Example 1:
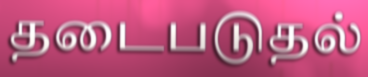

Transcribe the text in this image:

தடைபடுதல்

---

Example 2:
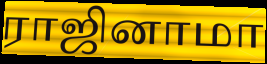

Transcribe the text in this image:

ராஜினாமா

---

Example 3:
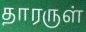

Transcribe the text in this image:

தாரருள்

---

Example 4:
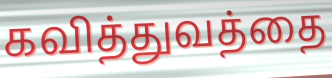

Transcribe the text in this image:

கவித்துவத்தை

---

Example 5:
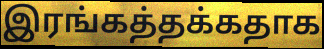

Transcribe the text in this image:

இரங்கத்தக்கதாக